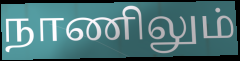
நாணிலும்